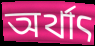
অর্থাৎ